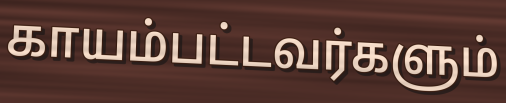
காயம்பட்டவர்களும்